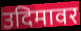
उदिमावर